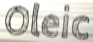
Oleic